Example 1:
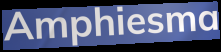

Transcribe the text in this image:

Amphiesma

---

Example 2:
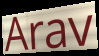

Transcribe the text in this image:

Arav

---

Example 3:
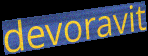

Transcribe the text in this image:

devoravit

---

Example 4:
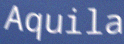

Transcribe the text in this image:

Aquila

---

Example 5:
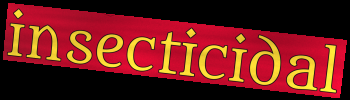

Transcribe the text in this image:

insecticidal